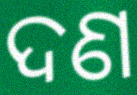
ଦଣ